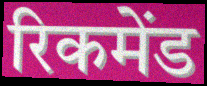
रिकमेंड